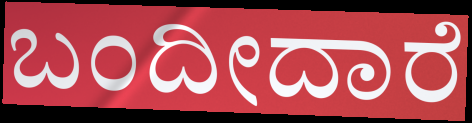
ಬಂದೀದಾರೆ